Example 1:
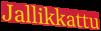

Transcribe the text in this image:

Jallikkattu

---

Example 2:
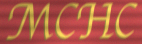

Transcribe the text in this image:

MCHC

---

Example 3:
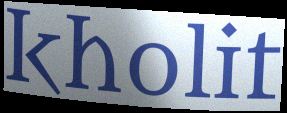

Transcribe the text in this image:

kholit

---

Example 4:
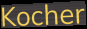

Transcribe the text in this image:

Kocher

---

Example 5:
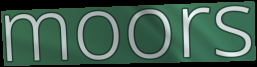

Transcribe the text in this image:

moors